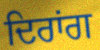
ਦਿਰਾਂਗ